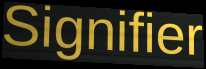
Signifier